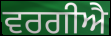
ਵਰਗੀਐ